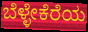
ಬೆಳ್ಳೇಕೆರೆಯ